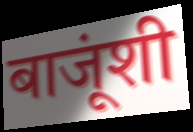
बाजूंशी